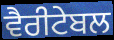
ਵੈਰੀਟੇਬਲ